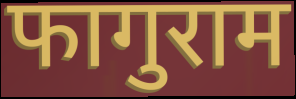
फागुराम